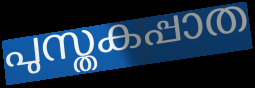
പുസ്തകപ്പാത